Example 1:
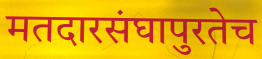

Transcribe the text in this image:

मतदारसंघापुरतेच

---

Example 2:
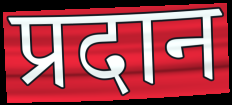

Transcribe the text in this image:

प्रदान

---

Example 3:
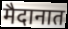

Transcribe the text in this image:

मैदानात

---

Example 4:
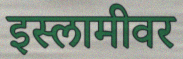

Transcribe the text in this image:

इस्लामीवर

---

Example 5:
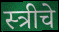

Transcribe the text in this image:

स्त्रीचे